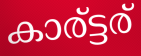
കാര്ട്ടര്